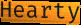
Hearty